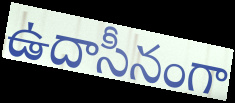
ఉదాసీనంగా